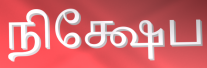
நிக்ஷேப